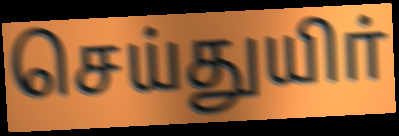
செய்துயிர்